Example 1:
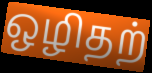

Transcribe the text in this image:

ஒழிதற்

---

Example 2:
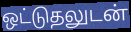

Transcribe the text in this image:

ஒட்டுதலுடன்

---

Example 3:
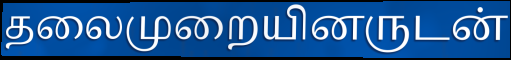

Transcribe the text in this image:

தலைமுறையினருடன்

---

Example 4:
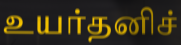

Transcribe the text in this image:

உயர்தனிச்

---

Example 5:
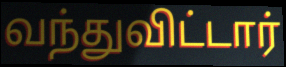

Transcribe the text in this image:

வந்துவிட்டார்